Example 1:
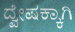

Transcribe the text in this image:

ದ್ವೇಷಕ್ಕಾಗಿ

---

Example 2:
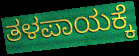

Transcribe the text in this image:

ತಳಪಾಯಕ್ಕೆ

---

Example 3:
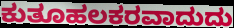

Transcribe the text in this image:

ಕುತೂಹಲಕರವಾದುದು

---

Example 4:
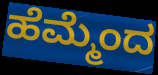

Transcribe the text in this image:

ಹೆಮ್ಮೆಂದ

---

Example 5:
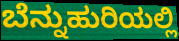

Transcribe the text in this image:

ಬೆನ್ನುಹುರಿಯಲ್ಲಿ